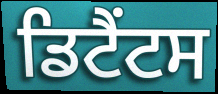
ਡਿਟੈਂਟਸ